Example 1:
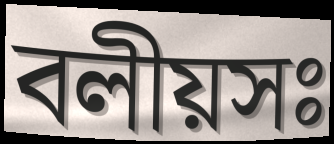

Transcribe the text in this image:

বলীয়সঃ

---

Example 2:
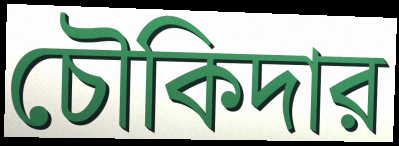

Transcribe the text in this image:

চৌকিদার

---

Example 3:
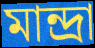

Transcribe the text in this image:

মান্দ্রা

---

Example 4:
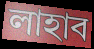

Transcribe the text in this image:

লাহাব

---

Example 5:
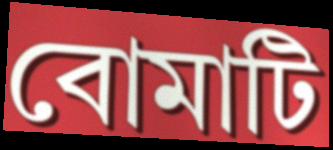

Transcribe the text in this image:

বোমাটি